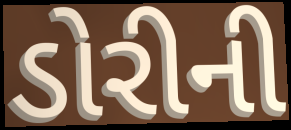
ડોરીની